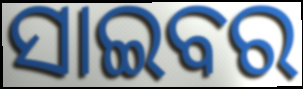
ସାଇବର